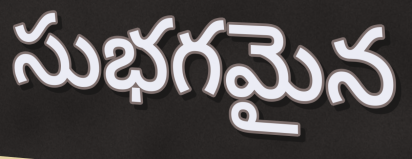
సుభగమైన